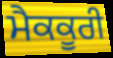
ਮੈਕਕੂਰੀ